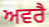
ਅਵਰੈ